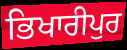
ਭਿਖਾਰੀਪੁਰ